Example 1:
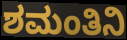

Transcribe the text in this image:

ಶಮಂತಿನಿ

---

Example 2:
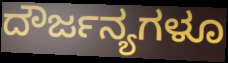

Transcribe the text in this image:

ದೌರ್ಜನ್ಯಗಳೂ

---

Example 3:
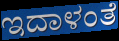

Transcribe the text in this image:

ಇದಾಳಂತೆ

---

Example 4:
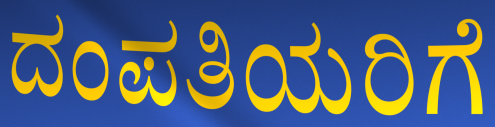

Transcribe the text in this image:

ದಂಪತಿಯರಿಗೆ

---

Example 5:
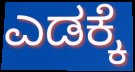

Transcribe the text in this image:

ಎಡಕ್ಕೆ